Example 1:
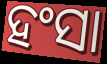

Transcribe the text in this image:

ହଂସା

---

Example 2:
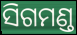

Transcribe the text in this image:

ସିଗମଣ୍ଡ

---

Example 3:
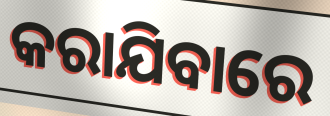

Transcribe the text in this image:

କରାଯିବାରେ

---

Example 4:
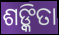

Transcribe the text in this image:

ଶଙ୍କିତା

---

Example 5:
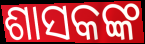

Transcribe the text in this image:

ଶାସକଙ୍କ